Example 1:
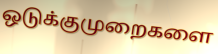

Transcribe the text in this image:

ஒடுக்குமுறைகளை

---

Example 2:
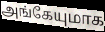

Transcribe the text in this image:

அங்கேயுமாக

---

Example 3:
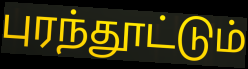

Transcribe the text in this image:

புரந்தூட்டும்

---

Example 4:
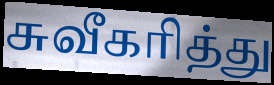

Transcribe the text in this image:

சுவீகரித்து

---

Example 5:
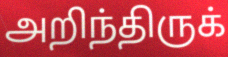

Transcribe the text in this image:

அறிந்திருக்